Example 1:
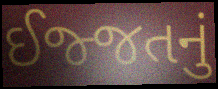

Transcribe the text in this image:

ઈજ્જતનું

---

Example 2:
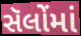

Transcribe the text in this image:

સૅલોંમાં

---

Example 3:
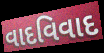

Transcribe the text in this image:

વાદવિવાદ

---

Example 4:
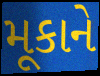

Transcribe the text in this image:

મૂકાને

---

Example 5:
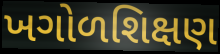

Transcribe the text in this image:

ખગોળશિક્ષણ